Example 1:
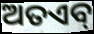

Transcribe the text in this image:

ଅତଏବ୍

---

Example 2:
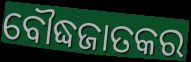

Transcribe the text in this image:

ବୌଦ୍ଧଜାତକର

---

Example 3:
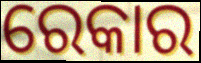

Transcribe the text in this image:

ରେକାର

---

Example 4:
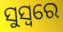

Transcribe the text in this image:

ସୁସ୍ୱରେ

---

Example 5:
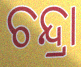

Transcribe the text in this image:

ଚନ୍ଦ୍ରା